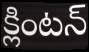
క్లింటన్